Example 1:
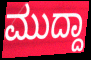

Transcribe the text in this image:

ಮುದ್ದಾ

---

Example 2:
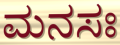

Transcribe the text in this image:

ಮನಸಃ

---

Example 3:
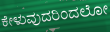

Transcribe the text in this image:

ಕೇಳುವುದರಿಂದಲೋ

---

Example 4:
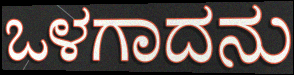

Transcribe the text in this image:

ಒಳಗಾದನು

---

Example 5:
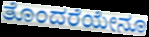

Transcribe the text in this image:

ತೊಂದರೆಯೇನೂ